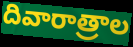
దివారాత్రాల